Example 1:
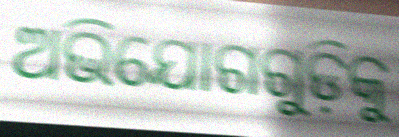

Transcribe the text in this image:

ଅଭିଯୋଗଗୁଡ଼ିକୁ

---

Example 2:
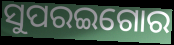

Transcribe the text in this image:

ସୁପରଇଗୋର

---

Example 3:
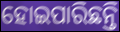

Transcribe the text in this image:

ହୋଇପାରିଛନ୍ତି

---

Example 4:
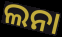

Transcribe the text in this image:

ଲନା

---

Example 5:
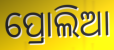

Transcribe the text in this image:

ପ୍ରୋଲିଆ